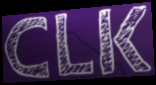
CLK